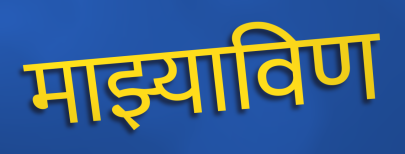
माझ्याविण